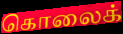
கொலைக்